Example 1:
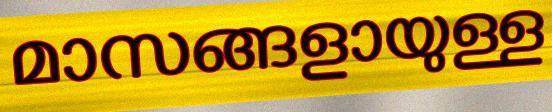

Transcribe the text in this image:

മാസങ്ങളായുള്ള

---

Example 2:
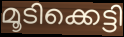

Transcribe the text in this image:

മൂടിക്കെട്ടി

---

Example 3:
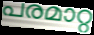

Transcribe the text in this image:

പരമാറ്റ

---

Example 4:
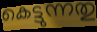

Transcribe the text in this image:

കെട്ടുന്നതു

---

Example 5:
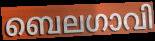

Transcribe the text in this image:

ബെലഗാവി